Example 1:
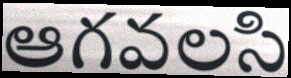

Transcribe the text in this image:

ఆగవలసి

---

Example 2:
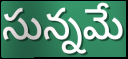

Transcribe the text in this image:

సున్నమే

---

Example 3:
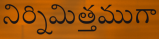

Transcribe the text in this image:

నిర్నిమిత్తముగా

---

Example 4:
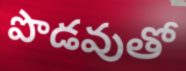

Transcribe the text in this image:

పొడవుతో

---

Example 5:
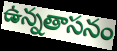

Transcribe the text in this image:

ఉన్నతాసనం